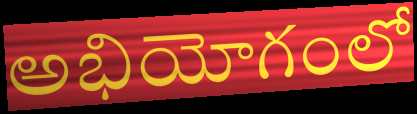
అభియోగంలో